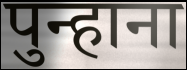
पुन्हाना